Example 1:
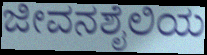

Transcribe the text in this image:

ಜೀವನಶೈಲಿಯ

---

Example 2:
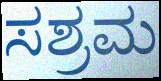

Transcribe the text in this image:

ಸಶ್ರಮ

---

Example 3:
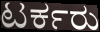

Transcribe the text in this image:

ಟರ್ಕರು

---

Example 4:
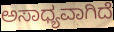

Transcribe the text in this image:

ಅಸಾಧ್ಯವಾಗಿದೆ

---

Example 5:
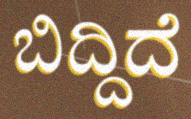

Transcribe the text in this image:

ಬಿದ್ದಿದೆ